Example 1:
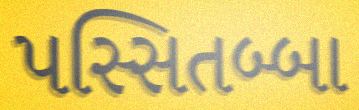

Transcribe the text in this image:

પસ્સિતબ્બા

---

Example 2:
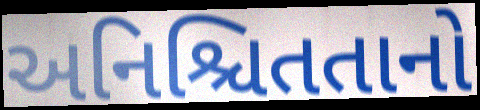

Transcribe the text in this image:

અનિશ્ચિતતાનો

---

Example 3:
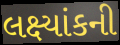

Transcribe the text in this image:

લક્ષ્યાંકની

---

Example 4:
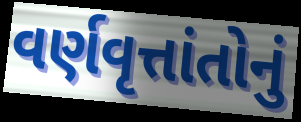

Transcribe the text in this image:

વર્ણવૃત્તાંતોનું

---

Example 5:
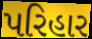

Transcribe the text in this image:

પરિહાર